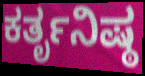
ಕರ್ತೃನಿಷ್ಠ